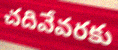
చదివేవరకు